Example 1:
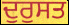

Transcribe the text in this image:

ਦੁਰੁਸਤ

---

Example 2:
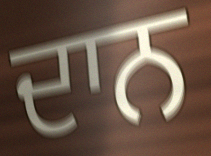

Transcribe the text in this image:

ਦਾਨ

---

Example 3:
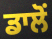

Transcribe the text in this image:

ਡਾਲੋਂ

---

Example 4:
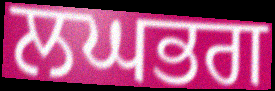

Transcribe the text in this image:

ਲਘਭਗ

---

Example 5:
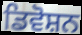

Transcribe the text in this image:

ਡਿਵੋਸ਼ਨ